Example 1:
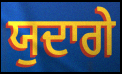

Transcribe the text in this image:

ਯੁਦਾਗੇ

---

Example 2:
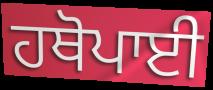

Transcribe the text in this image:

ਹਥੋਪਾਈ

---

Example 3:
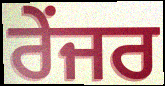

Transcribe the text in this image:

ਰੇਂਜਰ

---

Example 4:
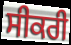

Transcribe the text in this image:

ਸੀਕਰੀ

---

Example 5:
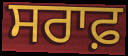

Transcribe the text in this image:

ਸਰਾਫ਼